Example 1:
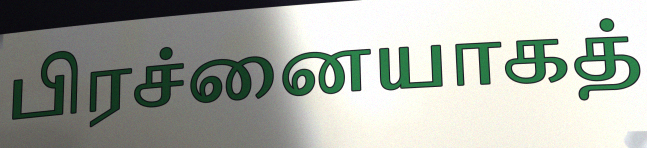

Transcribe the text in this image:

பிரச்னையாகத்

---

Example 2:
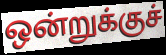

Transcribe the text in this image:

ஒன்றுக்குச்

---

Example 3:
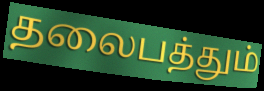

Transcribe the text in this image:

தலைபத்தும்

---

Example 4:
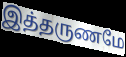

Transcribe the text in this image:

இத்தருணமே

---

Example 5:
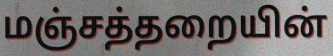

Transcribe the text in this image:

மஞ்சத்தறையின்